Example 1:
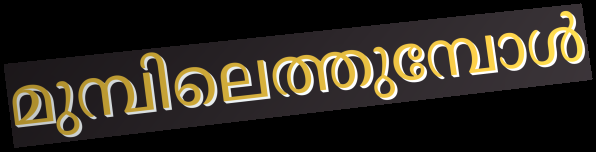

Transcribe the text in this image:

മുമ്പിലെത്തുമ്പോൾ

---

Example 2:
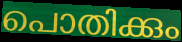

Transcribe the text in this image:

പൊതിക്കും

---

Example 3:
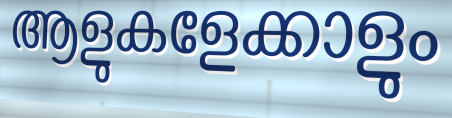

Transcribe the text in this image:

ആളുകളേക്കാളും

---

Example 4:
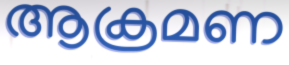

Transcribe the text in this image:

ആക്രമണ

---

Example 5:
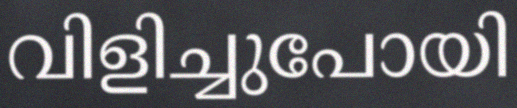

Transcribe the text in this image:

വിളിച്ചുപോയി